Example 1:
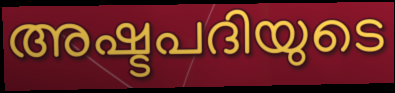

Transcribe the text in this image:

അഷ്ടപദിയുടെ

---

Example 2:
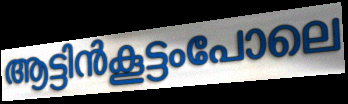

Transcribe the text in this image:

ആട്ടിൻകൂട്ടംപോലെ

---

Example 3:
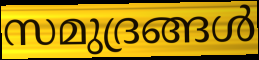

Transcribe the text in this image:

സമുദ്രങ്ങൾ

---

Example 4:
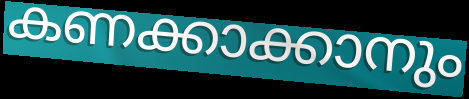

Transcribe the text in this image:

കണക്കാക്കാനും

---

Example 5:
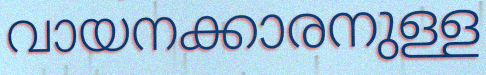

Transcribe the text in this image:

വായനക്കാരനുള്ള